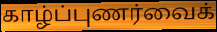
காழ்ப்புணர்வைக்